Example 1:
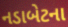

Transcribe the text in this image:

નડાબેટના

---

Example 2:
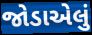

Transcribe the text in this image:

જોડાએલું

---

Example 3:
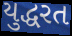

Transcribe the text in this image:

યુદ્ધરત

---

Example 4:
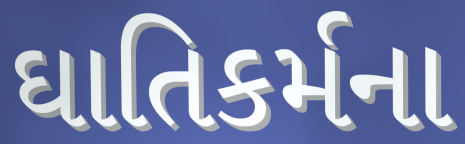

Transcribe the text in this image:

ઘાતિકર્મના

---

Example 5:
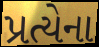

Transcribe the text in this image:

પ્રત્યેના